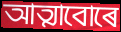
আত্মাবোৰে